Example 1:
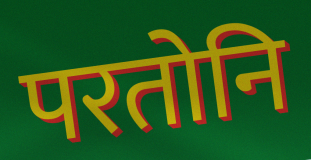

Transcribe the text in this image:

परतोनि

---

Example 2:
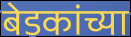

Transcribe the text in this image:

बेडकांच्या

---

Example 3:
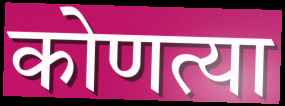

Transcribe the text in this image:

कोणत्या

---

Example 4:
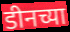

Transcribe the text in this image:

डीनच्या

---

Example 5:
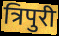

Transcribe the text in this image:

त्रिपुरी